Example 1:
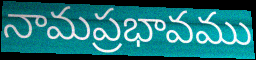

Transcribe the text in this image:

నామప్రభావము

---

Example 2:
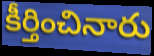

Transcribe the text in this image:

కీర్తించినారు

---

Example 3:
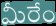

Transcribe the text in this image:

మీరేం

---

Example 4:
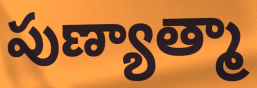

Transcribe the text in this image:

పుణ్యాత్మా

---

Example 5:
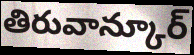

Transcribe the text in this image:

తిరువాన్కూర్